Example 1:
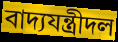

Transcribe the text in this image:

বাদ্যযন্ত্রীদল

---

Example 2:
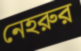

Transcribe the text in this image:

নেহরুর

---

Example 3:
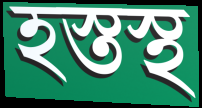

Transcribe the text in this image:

হস্তস্থ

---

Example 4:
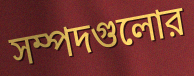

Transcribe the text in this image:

সম্পদগুলোর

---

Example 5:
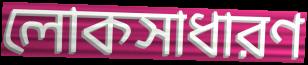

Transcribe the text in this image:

লোকসাধারণ